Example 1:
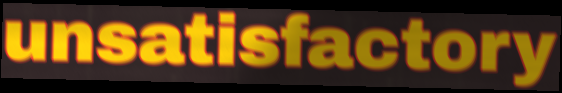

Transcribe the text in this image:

unsatisfactory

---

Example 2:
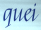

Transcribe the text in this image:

quei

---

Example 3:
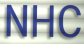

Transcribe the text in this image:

NHC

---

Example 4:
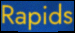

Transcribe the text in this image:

Rapids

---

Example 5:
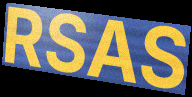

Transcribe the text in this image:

RSAS